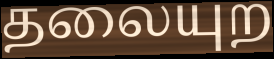
தலையுற